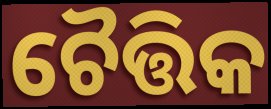
ଚୈତ୍ତିକ